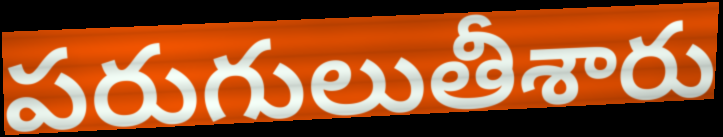
పరుగులుతీశారు